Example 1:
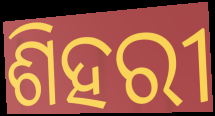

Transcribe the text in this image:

ଶିହରୀ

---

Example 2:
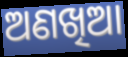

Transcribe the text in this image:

ଅଣଖିଆ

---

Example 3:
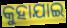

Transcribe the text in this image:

କୁହାଯାଇ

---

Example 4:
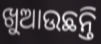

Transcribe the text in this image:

ଖୁଆଉଛନ୍ତି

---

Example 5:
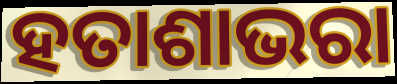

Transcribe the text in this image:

ହତାଶାଭରା